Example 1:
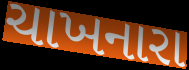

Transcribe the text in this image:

ચાખનારા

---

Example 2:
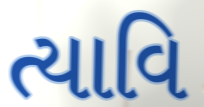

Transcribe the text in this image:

ત્યાવિ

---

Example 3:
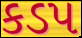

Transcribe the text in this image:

કડપ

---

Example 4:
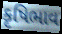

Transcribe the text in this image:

કૃષિભાવ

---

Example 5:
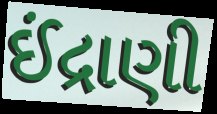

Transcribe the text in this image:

ઈંદ્રાણી